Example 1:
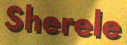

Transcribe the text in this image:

Sherele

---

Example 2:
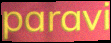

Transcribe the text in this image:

paravi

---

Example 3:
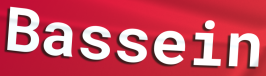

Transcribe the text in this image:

Bassein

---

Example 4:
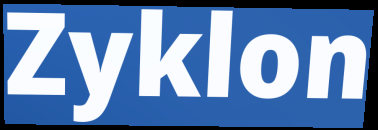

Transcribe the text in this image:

Zyklon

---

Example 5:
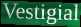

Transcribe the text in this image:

Vestigial